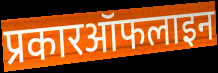
प्रकारऑफलाइन